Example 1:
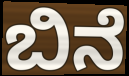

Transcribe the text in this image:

ಬಿನೆ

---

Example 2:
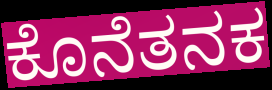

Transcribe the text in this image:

ಕೊನೆತನಕ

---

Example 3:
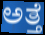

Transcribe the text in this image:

ಅತ್ತೆ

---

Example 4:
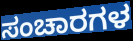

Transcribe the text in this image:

ಸಂಚಾರಗಳ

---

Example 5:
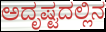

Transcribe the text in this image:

ಅದೃಷ್ಟದಲ್ಲಿನ